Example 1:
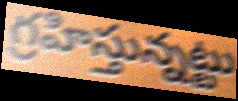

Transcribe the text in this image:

గ్రహిస్తున్నట్టు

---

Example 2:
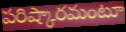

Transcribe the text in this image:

పరిష్కారమంటూ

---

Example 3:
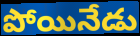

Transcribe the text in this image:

పోయినేడు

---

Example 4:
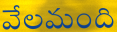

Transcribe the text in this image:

వేలమంది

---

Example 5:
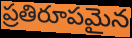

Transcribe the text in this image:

ప్రతిరూపమైన